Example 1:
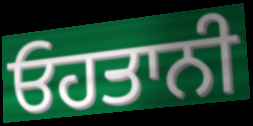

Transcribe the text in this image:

ਓਹਤਾਨੀ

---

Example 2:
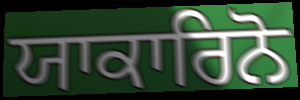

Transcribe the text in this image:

ਯਾਕਾਰਿਨੋ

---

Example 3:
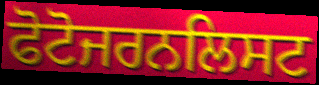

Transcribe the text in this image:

ਫੋਟੋਜਰਨਲਿਸਟ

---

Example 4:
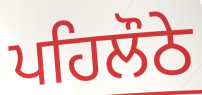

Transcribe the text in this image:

ਪਹਿਲੌਠੇ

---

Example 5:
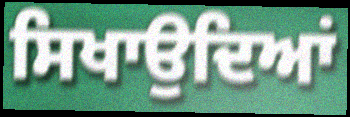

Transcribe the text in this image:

ਸਿਖਾਉਦਿਆਂ